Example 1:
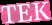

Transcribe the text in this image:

TEK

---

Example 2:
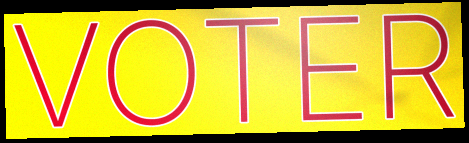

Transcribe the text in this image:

VOTER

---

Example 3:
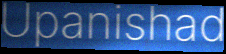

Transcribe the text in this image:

Upanishad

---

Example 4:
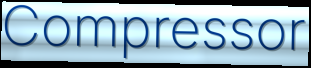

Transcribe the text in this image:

Compressor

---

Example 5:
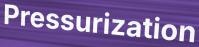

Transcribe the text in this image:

Pressurization